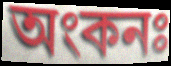
অংকনঃ